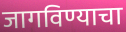
जागविण्याचा